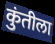
कुंतीला